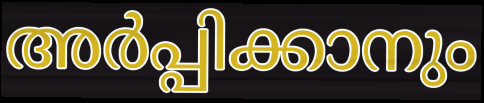
അർപ്പിക്കാനും